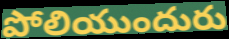
పోలియుందురు